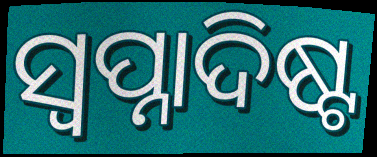
ସ୍ୱପ୍ନାଦିଷ୍ଟ